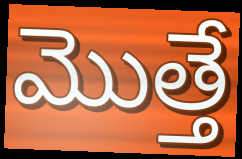
మొత్తే